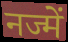
नज्में